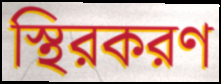
স্থিরকরণ